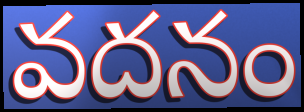
వదనం